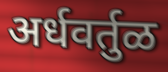
अर्धवर्तुळ